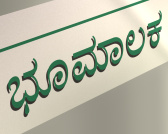
ಭೂಮಾಲಕ